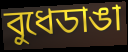
বুধেডাঙা